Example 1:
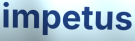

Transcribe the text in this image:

impetus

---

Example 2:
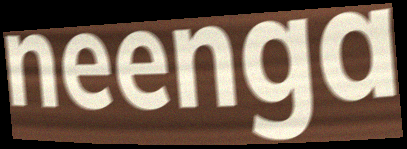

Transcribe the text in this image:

neenga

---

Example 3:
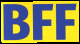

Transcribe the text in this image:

BFF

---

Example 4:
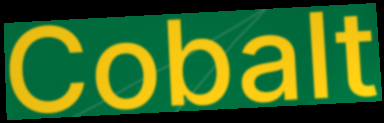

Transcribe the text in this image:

Cobalt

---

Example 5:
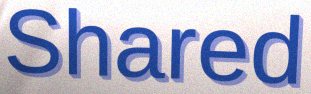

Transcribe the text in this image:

Shared